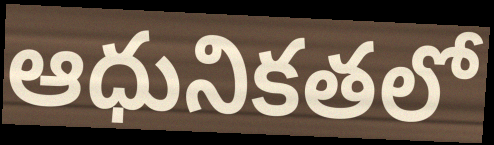
ఆధునికతలో